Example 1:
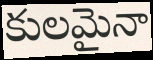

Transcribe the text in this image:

కులమైనా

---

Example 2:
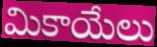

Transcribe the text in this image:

మికాయేలు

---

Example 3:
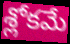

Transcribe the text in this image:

శ్లోకమే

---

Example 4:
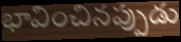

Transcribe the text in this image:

భావించినప్పుడు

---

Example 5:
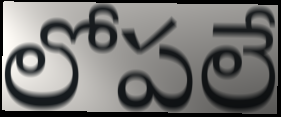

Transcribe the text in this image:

లోపలే